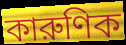
কারুণিক